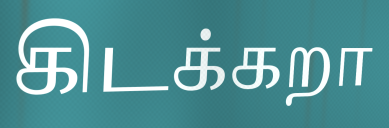
கிடக்கறா